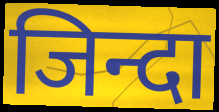
जिन्‍दा